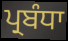
ਪ੍ਰਬੰਧਾ